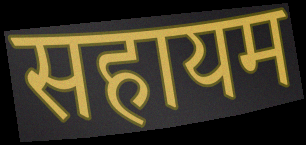
सहायम